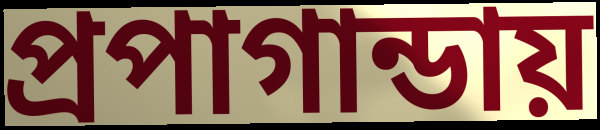
প্রপাগান্ডায়